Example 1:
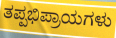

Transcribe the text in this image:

ತಪ್ಪಭಿಪ್ರಾಯಗಳು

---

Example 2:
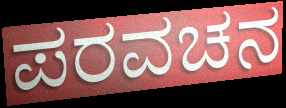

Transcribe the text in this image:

ಪರವಚನ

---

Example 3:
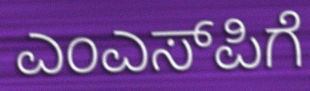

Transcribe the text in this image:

ಎಂಎಸ್‌ಪಿಗೆ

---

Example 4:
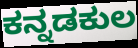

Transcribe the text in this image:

ಕನ್ನಡಕುಲ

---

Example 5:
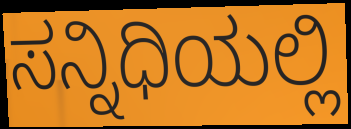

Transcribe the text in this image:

ಸನ್ನಿಧಿಯಲ್ಲಿ